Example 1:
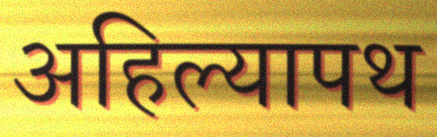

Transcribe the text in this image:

अहिल्यापथ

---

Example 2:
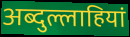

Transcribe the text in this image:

अब्दुल्लाहियां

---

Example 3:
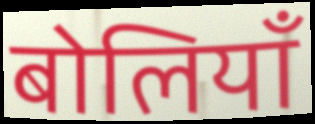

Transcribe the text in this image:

बोलियाँ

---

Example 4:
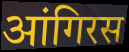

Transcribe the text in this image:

आंगिरस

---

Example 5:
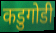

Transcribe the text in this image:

कडुगोडी